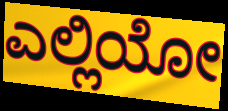
ಎಲ್ಲಿಯೋ